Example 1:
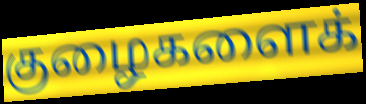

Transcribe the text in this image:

குழைகளைக்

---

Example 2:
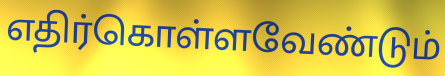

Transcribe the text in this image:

எதிர்கொள்ளவேண்டும்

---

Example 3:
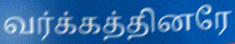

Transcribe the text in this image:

வர்க்கத்தினரே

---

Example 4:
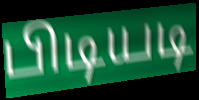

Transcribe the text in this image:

பிடியடி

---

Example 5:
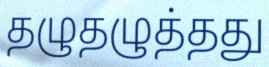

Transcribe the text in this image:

தழுதழுத்தது